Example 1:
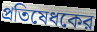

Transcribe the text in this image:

প্রতিষেধকের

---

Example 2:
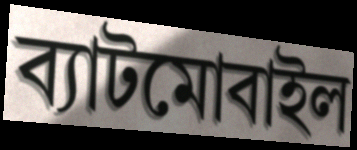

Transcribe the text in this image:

ব্যাটমোবাইল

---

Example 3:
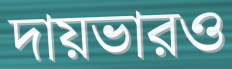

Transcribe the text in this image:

দায়ভারও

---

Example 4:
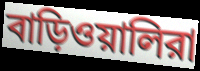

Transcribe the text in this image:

বাড়িওয়ালিরা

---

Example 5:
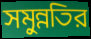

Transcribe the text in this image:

সমুন্নতির